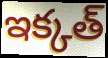
ఇక్కత్